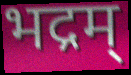
भद्रम्